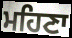
ਮਹਿਣਾ